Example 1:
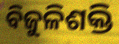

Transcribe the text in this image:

ବିଜୁଳିଶକ୍ତି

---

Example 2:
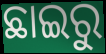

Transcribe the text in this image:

ଛାଇରୁ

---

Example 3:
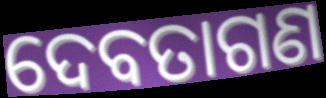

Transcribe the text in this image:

ଦେବତାଗଣ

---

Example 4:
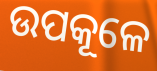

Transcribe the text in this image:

ଉପକୂଳେ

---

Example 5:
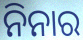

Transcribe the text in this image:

ନିନାର